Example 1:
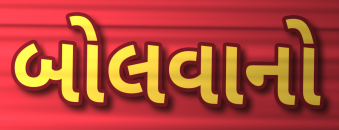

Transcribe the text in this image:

બોલવાનો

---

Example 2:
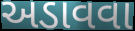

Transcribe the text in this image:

અડાવવા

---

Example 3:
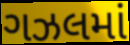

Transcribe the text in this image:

ગઝલમાં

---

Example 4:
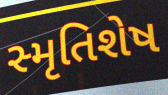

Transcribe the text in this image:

સ્મૃતિશેષ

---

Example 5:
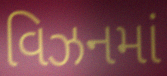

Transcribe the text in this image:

વિઝનમાં